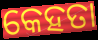
କେହତା